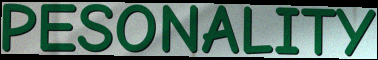
PESONALITY